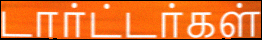
டார்ட்டர்கள்